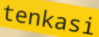
tenkasi